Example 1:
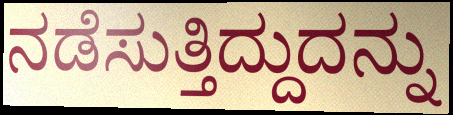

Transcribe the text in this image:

ನಡೆಸುತ್ತಿದ್ದುದನ್ನು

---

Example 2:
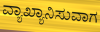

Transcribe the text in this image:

ವ್ಯಾಖ್ಯಾನಿಸುವಾಗ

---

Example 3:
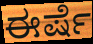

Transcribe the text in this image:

ಈರ್ಷೆ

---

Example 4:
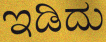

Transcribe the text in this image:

ಇಡಿದು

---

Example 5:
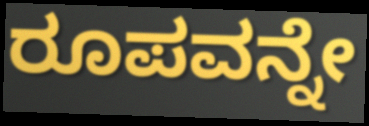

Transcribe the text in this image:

ರೂಪವನ್ನೇ